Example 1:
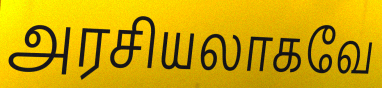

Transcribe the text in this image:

அரசியலாகவே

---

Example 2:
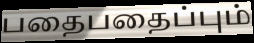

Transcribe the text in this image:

பதைபதைப்பும்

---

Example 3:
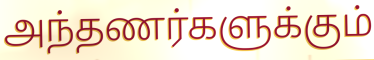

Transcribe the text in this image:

அந்தணர்களுக்கும்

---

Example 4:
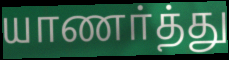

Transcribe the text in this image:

யாணர்த்து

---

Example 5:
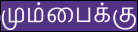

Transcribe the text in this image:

மும்பைக்கு